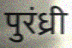
पुरंध्री